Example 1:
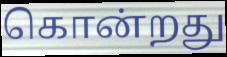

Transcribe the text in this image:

கொன்றது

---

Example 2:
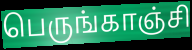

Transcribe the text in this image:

பெருங்காஞ்சி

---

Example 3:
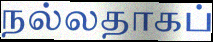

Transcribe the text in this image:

நல்லதாகப்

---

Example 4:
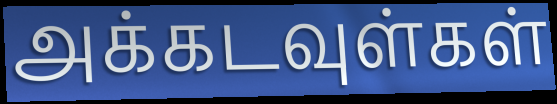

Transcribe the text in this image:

அக்கடவுள்கள்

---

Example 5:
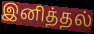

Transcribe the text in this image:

இனித்தல்